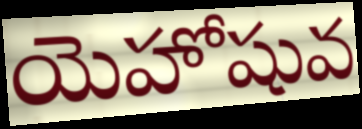
యెహోషువ